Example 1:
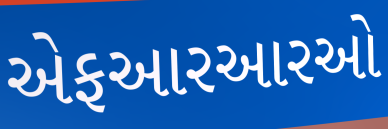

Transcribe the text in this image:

એફઆરઆરઓ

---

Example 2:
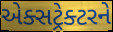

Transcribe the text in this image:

એક્સટ્રેક્ટરને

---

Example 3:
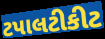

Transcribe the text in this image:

ટપાલટીકીટ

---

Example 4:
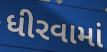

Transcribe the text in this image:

ધીરવામાં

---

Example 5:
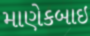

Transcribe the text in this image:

માણેકબાઇ